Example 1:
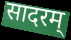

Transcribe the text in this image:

सादरम्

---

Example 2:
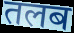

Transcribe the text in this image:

तलब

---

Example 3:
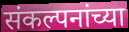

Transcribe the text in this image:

संकल्पनांच्या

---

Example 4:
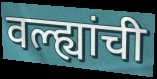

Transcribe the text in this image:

वल्ह्यांची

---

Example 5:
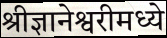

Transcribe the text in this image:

श्रीज्ञानेश्वरीमध्ये